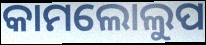
କାମଲୋଲୁପ